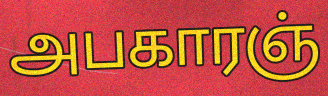
அபகாரஞ்